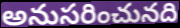
అనుసరించునది